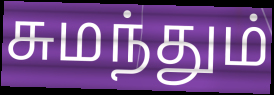
சுமந்தும்